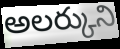
అలర్కుని